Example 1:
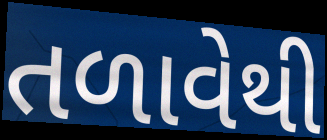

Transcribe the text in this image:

તળાવેથી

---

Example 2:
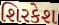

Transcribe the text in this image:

શિરકેશ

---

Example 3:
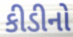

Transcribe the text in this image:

કીડીનો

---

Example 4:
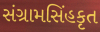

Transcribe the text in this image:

સંગ્રામસિંહકૃત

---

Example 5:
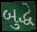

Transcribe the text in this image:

બુદ્ધે